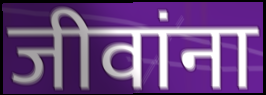
जीवांना